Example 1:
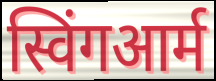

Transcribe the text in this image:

स्विंगआर्म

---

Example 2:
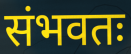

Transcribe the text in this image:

संभवतः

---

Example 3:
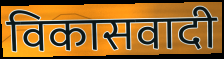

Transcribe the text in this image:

विकासवादी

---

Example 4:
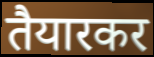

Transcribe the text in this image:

तैयारकर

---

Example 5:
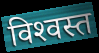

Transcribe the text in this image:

विश्‍वस्त